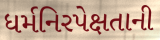
ધર્મનિરપેક્ષતાની